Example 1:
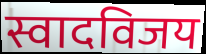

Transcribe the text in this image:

स्वादविजय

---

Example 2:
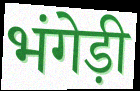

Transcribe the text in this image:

भंगेड़ी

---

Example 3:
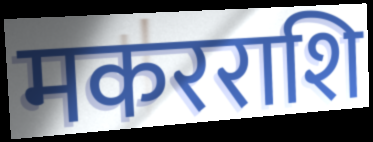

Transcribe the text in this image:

मकरराशि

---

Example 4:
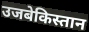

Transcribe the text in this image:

उजबेकिस्तान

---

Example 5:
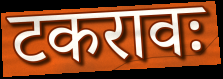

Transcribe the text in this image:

टकरावः